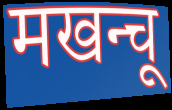
मखन्चू